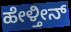
ಹೇಳ್ತೀನ್